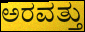
ಅರವತ್ತು